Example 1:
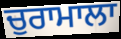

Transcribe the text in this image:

ਚੁਰਾਮਾਲਾ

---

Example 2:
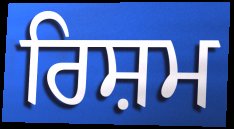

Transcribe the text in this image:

ਰਿਸ਼ਮ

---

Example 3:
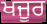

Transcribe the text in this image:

ਖਜੂਰ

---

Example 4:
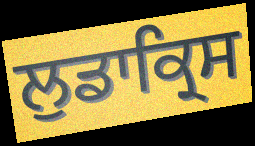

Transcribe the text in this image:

ਲੁਡਾਕ੍ਰਿਸ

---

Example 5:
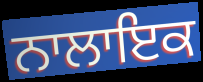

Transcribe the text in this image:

ਨਾਲਾਇਕ